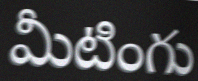
మీటింగు